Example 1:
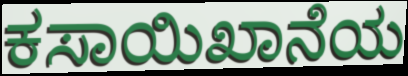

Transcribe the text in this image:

ಕಸಾಯಿಖಾನೆಯ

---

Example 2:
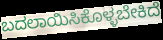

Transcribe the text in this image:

ಬದಲಾಯಿಸಿಕೊಳ್ಳಬೇಕಿದೆ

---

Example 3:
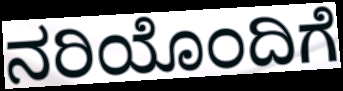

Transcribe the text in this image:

ನರಿಯೊಂದಿಗೆ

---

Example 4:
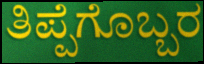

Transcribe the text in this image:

ತಿಪ್ಪೆಗೊಬ್ಬರ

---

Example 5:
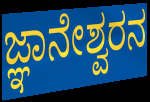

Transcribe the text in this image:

ಜ್ಞಾನೇಶ್ವರನ